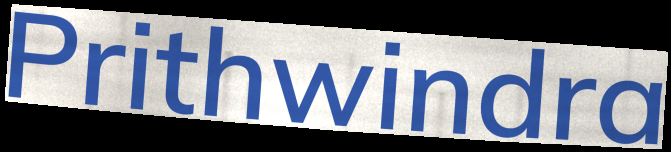
Prithwindra